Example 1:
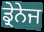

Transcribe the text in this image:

ਡ੍ਰੇਨੇਜ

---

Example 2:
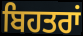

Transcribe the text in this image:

ਬਿਹਤਰਾਂ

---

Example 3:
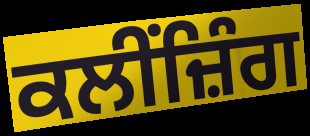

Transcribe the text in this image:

ਕਲੀਂਜ਼ਿੰਗ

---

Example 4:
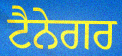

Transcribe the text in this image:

ਟੈਨੇਗਰ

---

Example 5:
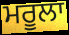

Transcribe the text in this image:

ਮਰੂਲਾ